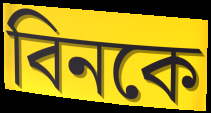
বিনকে